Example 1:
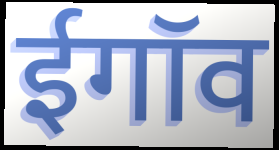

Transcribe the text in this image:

ईगॉव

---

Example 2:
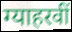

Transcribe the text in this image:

ग्याहरवीं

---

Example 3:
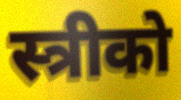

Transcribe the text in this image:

स्त्रीको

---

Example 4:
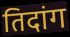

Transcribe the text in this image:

तिदांग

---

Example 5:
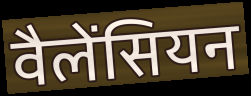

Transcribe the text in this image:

वैलेंसियन